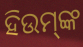
ହିଉମ୍‌ଙ୍କ